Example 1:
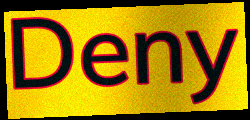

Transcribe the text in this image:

Deny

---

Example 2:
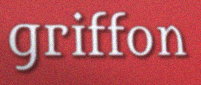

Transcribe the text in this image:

griffon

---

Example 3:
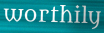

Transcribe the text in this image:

worthily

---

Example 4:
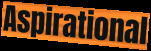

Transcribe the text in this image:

Aspirational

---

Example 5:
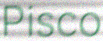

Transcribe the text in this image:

Pisco